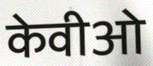
केवीओ